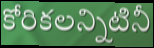
కోరికలన్నిటినీ